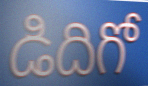
డిదిగో